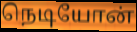
நெடியோன்